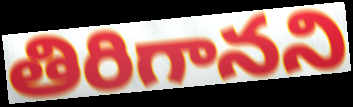
తిరిగానని